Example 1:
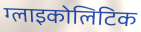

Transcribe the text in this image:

ग्लाइकोलिटिक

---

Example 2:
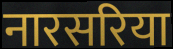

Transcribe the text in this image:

नारसरिया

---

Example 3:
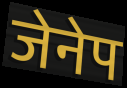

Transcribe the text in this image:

जेनेप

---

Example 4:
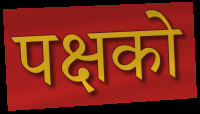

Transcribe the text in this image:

पक्षको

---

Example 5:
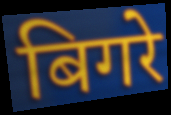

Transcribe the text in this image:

बिगरे